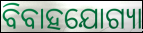
ବିବାହଯୋଗ୍ୟା